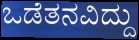
ಒಡೆತನವಿದ್ದು